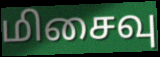
மிசைவு